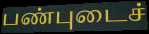
பண்புடைச்